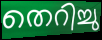
തെറിച്ചു